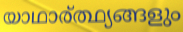
യാഥാര്ത്ഥ്യങ്ങളും